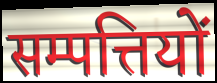
सम्पत्तियों